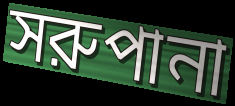
সরুপানা